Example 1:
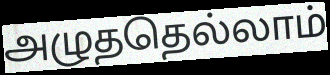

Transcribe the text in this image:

அழுததெல்லாம்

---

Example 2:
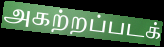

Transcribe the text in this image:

அகற்றப்படக்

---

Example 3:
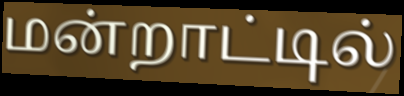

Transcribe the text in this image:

மன்றாட்டில்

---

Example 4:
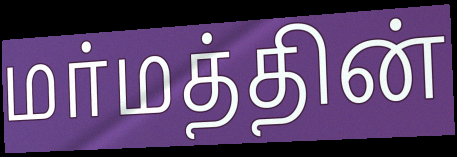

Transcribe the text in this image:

மர்மத்தின்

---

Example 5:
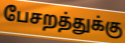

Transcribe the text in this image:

பேசறத்துக்கு